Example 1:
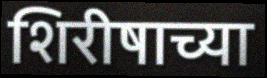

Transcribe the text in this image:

शिरीषाच्या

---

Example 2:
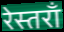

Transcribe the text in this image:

रेस्तराँ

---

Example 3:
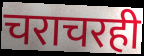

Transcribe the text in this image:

चराचरही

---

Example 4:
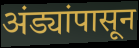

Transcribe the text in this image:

अंड्यांपासून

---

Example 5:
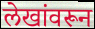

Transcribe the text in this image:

लेखांवरून